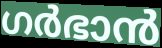
ഗർഭാൻ